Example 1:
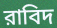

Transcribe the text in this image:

রাবিদ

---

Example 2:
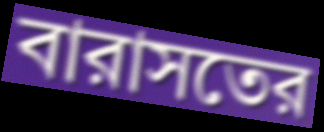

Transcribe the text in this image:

বারাসতের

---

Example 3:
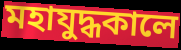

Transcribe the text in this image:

মহাযুদ্ধকালে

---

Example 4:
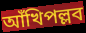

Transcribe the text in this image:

আঁখিপল্লব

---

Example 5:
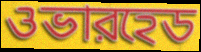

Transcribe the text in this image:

ওভারহেড